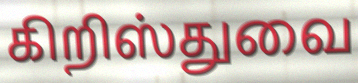
கிறிஸ்துவை